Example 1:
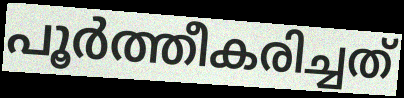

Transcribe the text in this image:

പൂർത്തീകരിച്ചത്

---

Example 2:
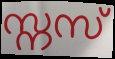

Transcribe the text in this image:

സ്നസ്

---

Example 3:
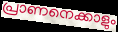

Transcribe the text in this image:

പ്രാണനെക്കാളും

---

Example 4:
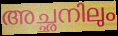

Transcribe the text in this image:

അച്ഛനിലും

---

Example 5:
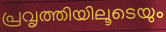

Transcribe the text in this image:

പ്രവൃത്തിയിലൂടെയും